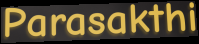
Parasakthi